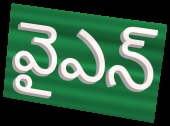
వైఎన్